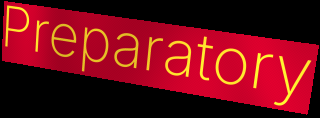
Preparatory